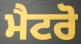
ਮੈਟਰੋ